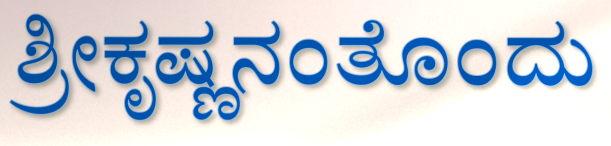
ಶ್ರೀಕೃಷ್ಣನಂತೊಂದು